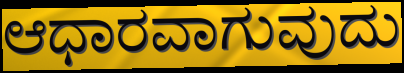
ಆಧಾರವಾಗುವುದು